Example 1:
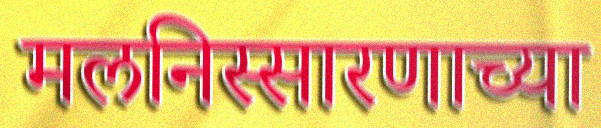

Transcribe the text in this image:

मलनिस्सारणाच्या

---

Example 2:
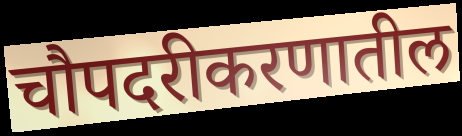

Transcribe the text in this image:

चौपदरीकरणातील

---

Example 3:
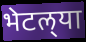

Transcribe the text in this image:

भेटल्या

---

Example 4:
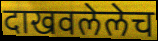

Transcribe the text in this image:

दाखवलेलेच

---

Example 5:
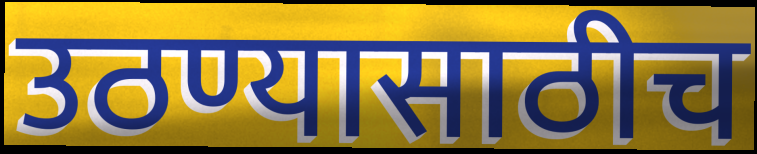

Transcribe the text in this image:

उठण्यासाठीच